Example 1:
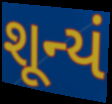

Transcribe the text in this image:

શૂન્યં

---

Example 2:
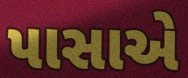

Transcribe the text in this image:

પાસાએ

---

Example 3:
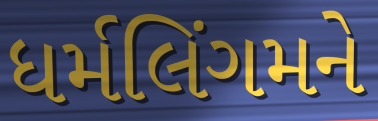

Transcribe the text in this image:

ધર્મલિંગમને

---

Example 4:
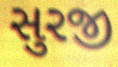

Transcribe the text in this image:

સુરજી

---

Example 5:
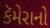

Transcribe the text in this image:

કૅમેરાનો